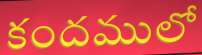
కందములో